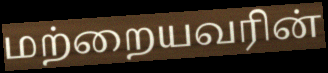
மற்றையவரின்